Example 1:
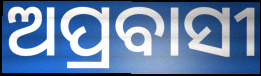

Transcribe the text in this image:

ଅପ୍ରବାସୀ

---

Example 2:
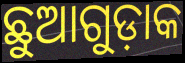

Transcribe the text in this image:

ଛୁଆଗୁଡ଼ାକ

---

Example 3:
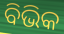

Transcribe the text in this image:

ବିଭିକ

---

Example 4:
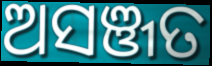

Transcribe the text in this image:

ଅସଞ୍ଜତ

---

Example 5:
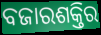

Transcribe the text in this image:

ବଜାରଶକ୍ତିର